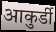
आकुर्डी